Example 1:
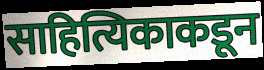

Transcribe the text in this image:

साहित्यिकाकडून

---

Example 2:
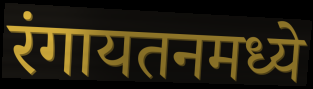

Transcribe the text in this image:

रंगायतनमध्ये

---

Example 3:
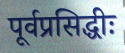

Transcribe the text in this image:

पूर्वप्रसिद्धीः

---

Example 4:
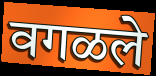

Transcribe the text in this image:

वगळले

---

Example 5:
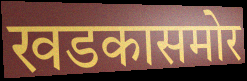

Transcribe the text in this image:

खडकासमोर